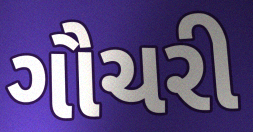
ગૌચરી